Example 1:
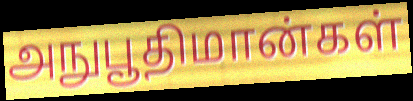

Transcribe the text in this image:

அநுபூதிமான்கள்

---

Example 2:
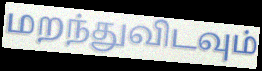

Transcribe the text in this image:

மறந்துவிடவும்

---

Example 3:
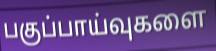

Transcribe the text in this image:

பகுப்பாய்வுகளை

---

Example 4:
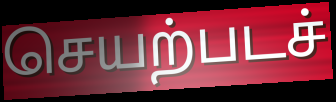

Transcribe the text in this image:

செயற்படச்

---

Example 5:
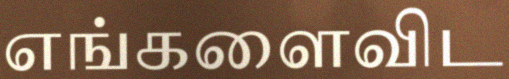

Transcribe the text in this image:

எங்களைவிட